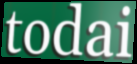
todai